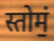
स्तोमं॒